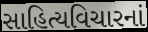
સાહિત્યવિચારનાં